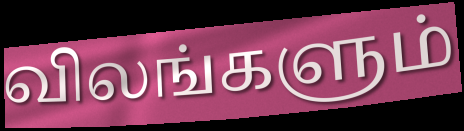
விலங்களும்